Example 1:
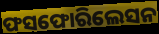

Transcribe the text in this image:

ଫସଫୋରିଲେସନ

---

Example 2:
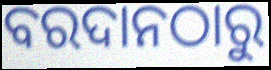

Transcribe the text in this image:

ବରଦାନଠାରୁ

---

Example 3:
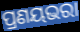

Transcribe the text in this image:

ପ୍ରଣୟଭରା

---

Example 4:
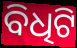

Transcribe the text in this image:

ବିଧିଟି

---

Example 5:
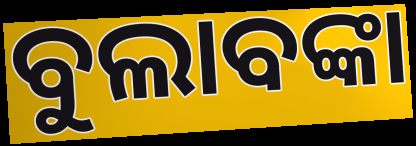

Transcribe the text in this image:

ବୁଲାବଙ୍କା